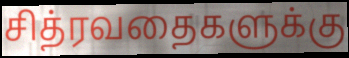
சித்ரவதைகளுக்கு